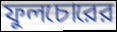
ফুলচোরের